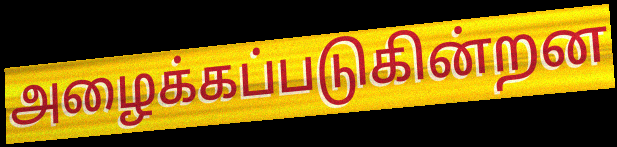
அழைக்கப்படுகின்றன